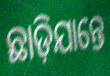
ଛାଡ଼ିଯାନ୍ତେ